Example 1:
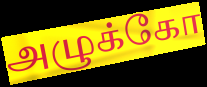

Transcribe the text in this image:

அழுக்கோ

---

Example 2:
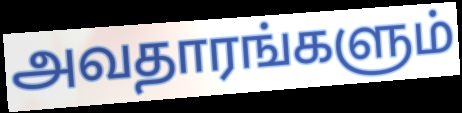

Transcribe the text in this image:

அவதாரங்களும்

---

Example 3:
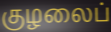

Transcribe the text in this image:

குழலைப்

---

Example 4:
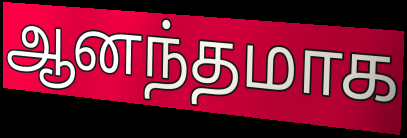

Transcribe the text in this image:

ஆனந்தமாக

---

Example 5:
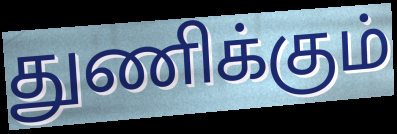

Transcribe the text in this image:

துணிக்கும்